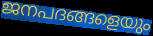
ജനപദങ്ങളെയും